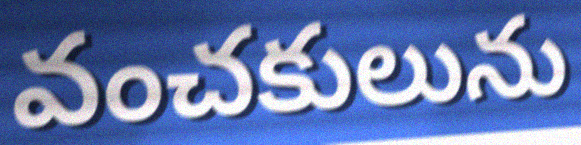
వంచకులును